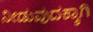
ನೀಡುವುದಕ್ಕಾಗಿ